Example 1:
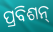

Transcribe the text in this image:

ପ୍ରବିଶନ୍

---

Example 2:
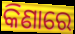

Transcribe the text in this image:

କିଣାରେ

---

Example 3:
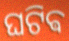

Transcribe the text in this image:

ଘଟିଵ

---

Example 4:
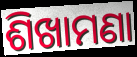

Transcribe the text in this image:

ଶିଖାମଣା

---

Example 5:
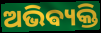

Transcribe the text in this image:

ଅଭିଵ୍ୟକ୍ତି